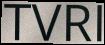
TVRI